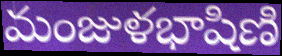
మంజుళభాషిణి